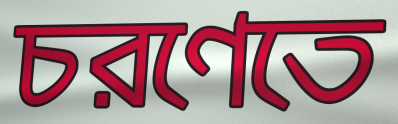
চরণেতে